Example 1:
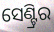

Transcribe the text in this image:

ସେଣ୍ଟ୍ରିର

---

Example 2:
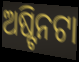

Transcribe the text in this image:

ଅଷ୍ଟିନଟା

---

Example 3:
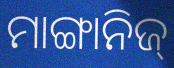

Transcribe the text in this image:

ମାଙ୍ଗାନିଜ୍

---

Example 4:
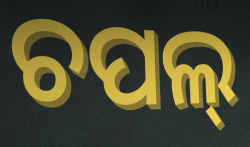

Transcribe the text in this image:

ଚପଲ୍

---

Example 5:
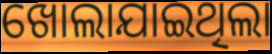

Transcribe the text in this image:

ଖୋଲାଯାଇଥିଲା